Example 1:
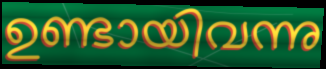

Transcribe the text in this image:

ഉണ്ടായിവന്നു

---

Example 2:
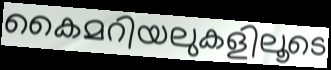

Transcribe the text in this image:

കൈമറിയലുകളിലൂടെ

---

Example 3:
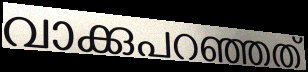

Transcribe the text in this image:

വാക്കുപറഞ്ഞത്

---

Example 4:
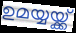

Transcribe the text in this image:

ഉമയ്യയ്ക്ക്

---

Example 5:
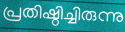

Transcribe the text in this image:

പ്രതിഷ്ഠിച്ചിരുന്നു